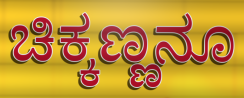
ಚಿಕ್ಕಣ್ಣನೂ